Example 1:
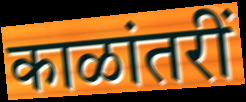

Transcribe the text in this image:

काळांतरीं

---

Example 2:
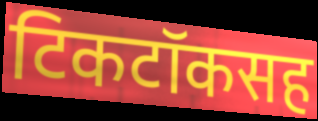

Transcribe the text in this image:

टिकटॉकसह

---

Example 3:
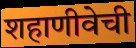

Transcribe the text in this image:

शहाणीवेची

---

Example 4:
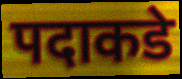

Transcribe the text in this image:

पदाकडे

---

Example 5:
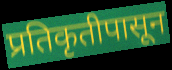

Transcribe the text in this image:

प्रतिकृतीपासून